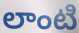
లాంటి